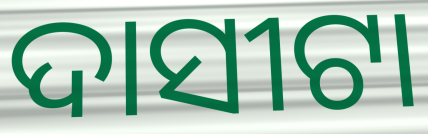
ଦାସୀଟା